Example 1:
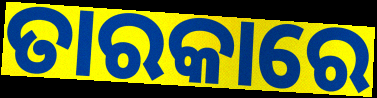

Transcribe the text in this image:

ତାରକାରେ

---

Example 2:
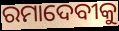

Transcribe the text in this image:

ରମାଦେବୀକୁ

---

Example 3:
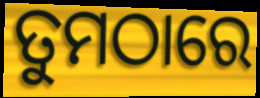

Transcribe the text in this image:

ତୁମଠାରେ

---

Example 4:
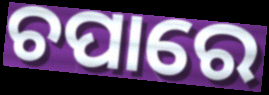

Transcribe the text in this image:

ଚପାରେ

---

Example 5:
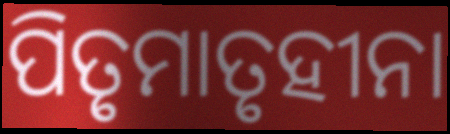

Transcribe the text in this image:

ପିତୃମାତୃହୀନା